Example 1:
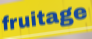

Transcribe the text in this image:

fruitage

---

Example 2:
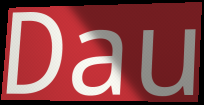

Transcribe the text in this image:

Dau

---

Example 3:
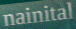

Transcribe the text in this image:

nainital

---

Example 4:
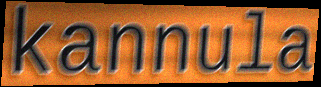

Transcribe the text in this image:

kannula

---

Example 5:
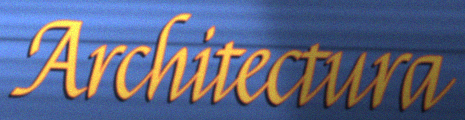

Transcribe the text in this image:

Architectura